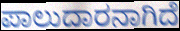
ಪಾಲುದಾರನಾಗಿದೆ